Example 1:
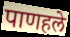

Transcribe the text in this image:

पाणहले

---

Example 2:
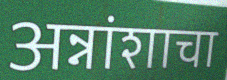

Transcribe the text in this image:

अन्नांशाचा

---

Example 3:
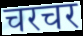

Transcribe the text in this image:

चरचर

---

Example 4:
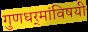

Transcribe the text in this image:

गुणधर्मांविषयी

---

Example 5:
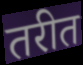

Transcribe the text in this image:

तरीत